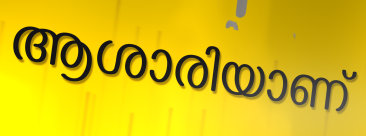
ആശാരിയാണ്